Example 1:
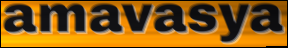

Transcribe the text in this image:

amavasya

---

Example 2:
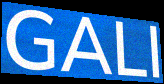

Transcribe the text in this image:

GALI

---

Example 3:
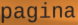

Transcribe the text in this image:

pagina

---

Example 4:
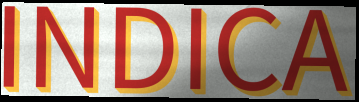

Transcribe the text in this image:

INDICA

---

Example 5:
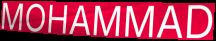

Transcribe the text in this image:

MOHAMMAD